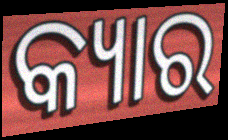
କ୍ୟାର